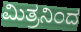
ಮಿತ್ರನಿಂದ